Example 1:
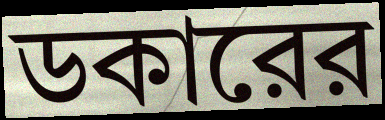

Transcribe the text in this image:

ডকারের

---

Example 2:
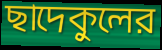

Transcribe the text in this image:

ছাদেকুলের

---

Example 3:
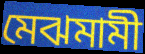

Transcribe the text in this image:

মেঝমামী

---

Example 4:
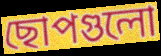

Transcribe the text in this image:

ছোপগুলো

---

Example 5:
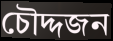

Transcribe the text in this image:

চৌদ্দজন